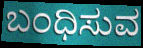
ಬಂಧಿಸುವ